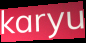
karyu